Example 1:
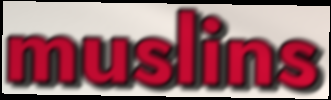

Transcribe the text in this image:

muslins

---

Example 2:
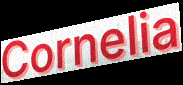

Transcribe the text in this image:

Cornelia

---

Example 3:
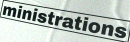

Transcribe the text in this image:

ministrations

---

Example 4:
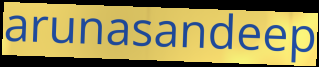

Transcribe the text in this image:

arunasandeep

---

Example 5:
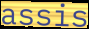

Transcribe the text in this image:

assis